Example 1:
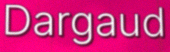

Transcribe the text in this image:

Dargaud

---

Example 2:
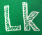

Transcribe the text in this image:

Lk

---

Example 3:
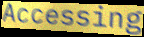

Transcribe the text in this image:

Accessing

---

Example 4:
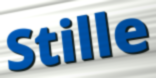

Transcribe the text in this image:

Stille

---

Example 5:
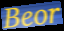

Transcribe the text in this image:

Beor